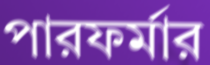
পারফর্মার